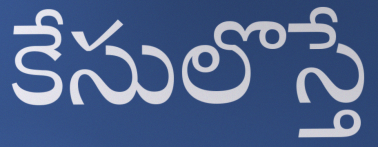
కేసులొస్తే